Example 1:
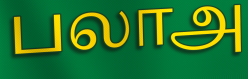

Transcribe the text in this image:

பலாஅ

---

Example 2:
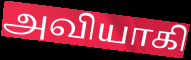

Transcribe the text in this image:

அவியாகி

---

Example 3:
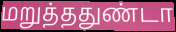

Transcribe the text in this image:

மறுத்ததுண்டா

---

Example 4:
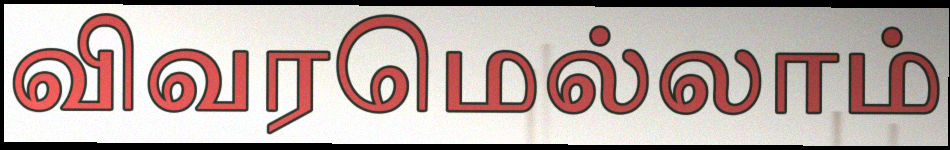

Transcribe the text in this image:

விவரமெல்லாம்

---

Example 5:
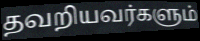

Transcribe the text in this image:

தவறியவர்களும்